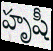
హృషీ